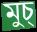
মুচ্